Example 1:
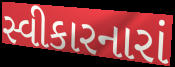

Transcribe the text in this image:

સ્વીકારનારાં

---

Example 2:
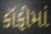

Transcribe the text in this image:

કૉફીમાં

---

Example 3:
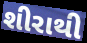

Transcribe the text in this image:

શીરાથી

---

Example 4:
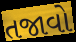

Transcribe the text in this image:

તજાવો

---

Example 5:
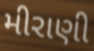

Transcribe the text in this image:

મીરાણી